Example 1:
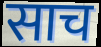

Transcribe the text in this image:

साच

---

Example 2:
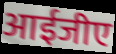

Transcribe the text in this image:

आईजीए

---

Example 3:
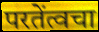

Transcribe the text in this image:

परतेंत्वचा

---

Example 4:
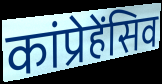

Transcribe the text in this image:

कांप्रेहेंसिव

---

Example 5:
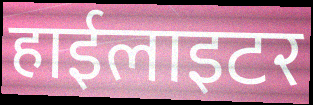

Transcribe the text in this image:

हाईलाइटर